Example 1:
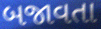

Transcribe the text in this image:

બજાવતા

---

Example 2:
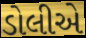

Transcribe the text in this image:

ડોલીએ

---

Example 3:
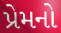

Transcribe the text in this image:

પ્રેમનો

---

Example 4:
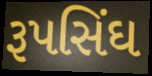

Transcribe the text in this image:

રૂપસિંઘ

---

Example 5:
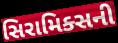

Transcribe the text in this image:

સિરામિક્સની